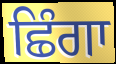
ਛਿੰਗਾ